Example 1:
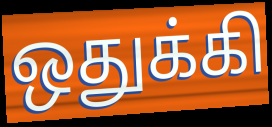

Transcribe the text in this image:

ஒதுக்கி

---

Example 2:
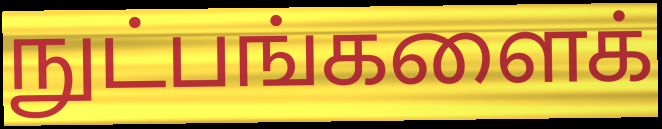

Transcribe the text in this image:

நுட்பங்களைக்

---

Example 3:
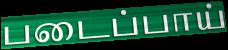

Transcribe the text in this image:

படைப்பாய்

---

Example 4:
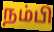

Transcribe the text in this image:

நம்பி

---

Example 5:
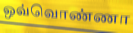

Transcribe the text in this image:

ஒவ்வொண்ணா